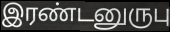
இரண்டனுருபு